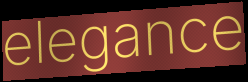
elegance